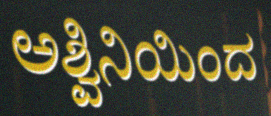
ಅಶ್ವಿನಿಯಿಂದ